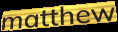
matthew